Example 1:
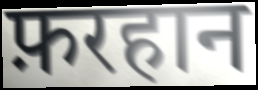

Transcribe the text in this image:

फ़रहान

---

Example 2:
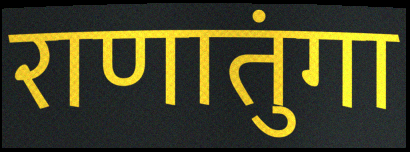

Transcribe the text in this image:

राणातुंगा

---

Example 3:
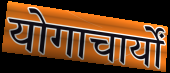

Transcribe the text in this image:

योगाचार्यों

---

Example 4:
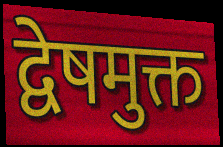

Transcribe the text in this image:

द्वेषमुक्त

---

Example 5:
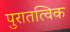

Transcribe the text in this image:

पुरातत्विक